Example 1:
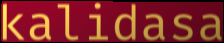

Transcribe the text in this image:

kalidasa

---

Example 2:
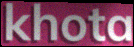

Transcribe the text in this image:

khota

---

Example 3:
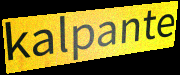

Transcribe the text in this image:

kalpante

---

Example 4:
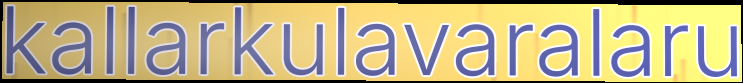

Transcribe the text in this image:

kallarkulavaralaru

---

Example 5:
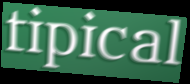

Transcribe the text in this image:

tipical